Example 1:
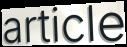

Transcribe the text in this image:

article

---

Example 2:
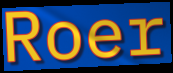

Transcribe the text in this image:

Roer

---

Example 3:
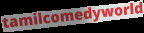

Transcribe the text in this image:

tamilcomedyworld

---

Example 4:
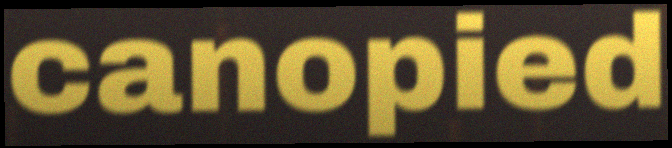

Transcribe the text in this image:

canopied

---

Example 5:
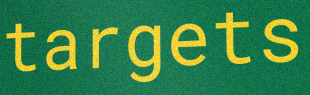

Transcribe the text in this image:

targets